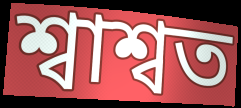
শ্বাশ্বত